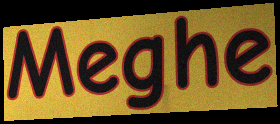
Meghe